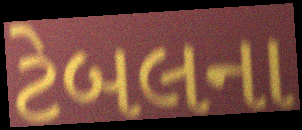
ટેબલના